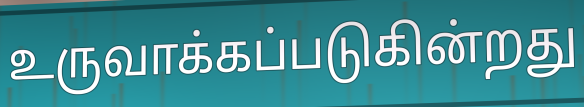
உருவாக்கப்படுகின்றது